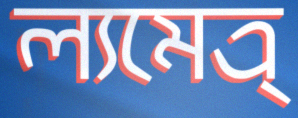
ল্যমেত্র্